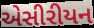
એસીરીયન